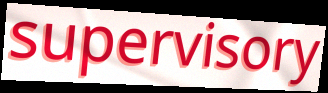
supervisory